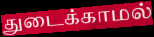
துடைக்காமல்